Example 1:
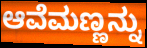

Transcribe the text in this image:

ಆವೆಮಣ್ಣನ್ನು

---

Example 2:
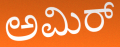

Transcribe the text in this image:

ಅಮಿರ್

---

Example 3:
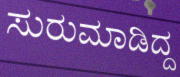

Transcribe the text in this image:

ಸುರುಮಾಡಿದ್ದ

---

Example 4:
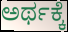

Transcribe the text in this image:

ಅರ್ಥಕ್ಕೆ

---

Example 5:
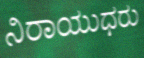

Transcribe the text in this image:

ನಿರಾಯುಧರು